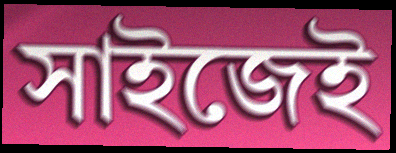
সাইজেই